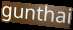
gunthai